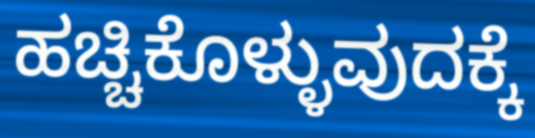
ಹಚ್ಚಿಕೊಳ್ಳುವುದಕ್ಕೆ